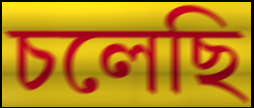
চলেছি